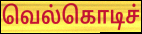
வெல்கொடிச்